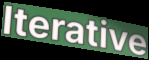
Iterative